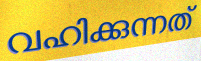
വഹിക്കുന്നത്